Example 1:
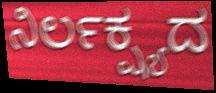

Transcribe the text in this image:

ನಿರ್ಲಕ್ಷ್ಯದ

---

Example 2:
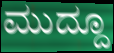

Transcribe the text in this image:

ಮುದ್ದೂ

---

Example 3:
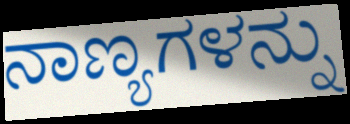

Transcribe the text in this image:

ನಾಣ್ಯಗಳನ್ನು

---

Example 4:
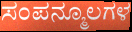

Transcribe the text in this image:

ಸಂಪನ್ಮೂಲಗಳ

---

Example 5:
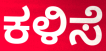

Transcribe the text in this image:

ಕಳಿಸೆ